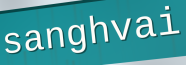
sanghvai